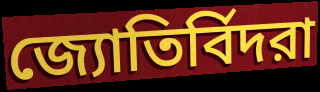
জ্যোতির্বিদরা